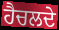
ਹੈਚਲਦੇ